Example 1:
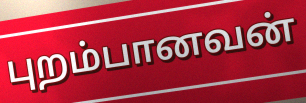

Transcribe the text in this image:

புறம்பானவன்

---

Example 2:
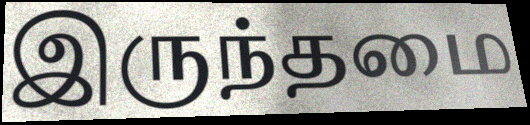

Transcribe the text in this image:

இருந்தமை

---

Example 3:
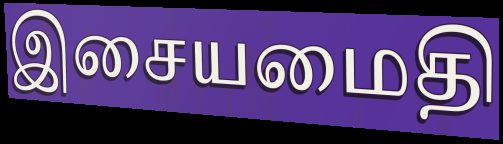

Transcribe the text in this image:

இசையமைதி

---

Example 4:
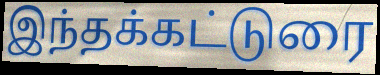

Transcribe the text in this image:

இந்தக்கட்டுரை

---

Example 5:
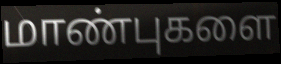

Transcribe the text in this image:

மாண்புகளை